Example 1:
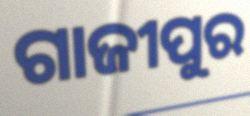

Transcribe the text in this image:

ଗାଜୀପୁର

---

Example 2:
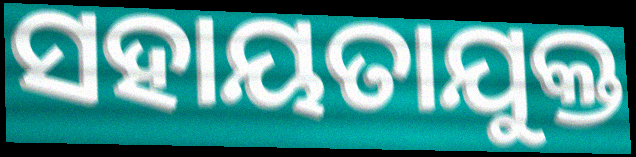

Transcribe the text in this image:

ସହାୟତାଯୁକ୍ତ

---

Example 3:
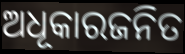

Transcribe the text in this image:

ଅଧୂକାରଜନିତ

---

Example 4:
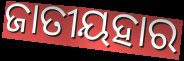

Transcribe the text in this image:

ଜାତୀୟହାର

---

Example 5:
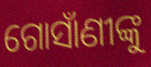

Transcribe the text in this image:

ଗୋସାଁଣୀଙ୍କୁ